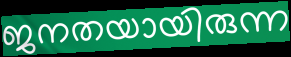
ജനതയായിരുന്ന